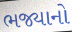
ભજ્યાનો